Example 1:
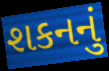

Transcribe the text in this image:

શકનનું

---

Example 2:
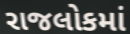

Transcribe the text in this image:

રાજલોકમાં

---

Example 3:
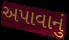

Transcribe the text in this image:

અપાવાનું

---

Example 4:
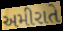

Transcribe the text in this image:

અમીરાતે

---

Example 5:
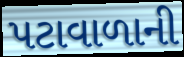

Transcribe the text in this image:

પટાવાળાની